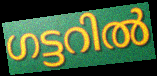
ഗട്ടറിൽ